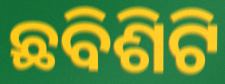
ଛବିଶିଟି